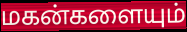
மகன்களையும்